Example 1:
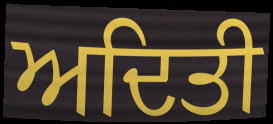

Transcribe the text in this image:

ਅਦਿਤੀ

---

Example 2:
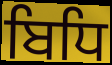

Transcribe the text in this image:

ਬਿਧਿ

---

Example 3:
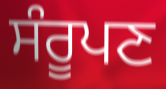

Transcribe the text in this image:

ਸੰਰੂਪਣ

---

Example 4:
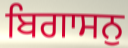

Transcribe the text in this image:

ਬਿਗਾਸਨੁ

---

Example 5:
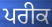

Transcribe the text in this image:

ਪਰੀਕ